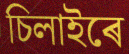
চিলাইৰে